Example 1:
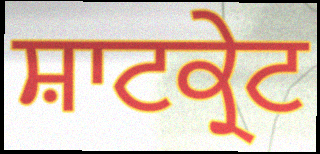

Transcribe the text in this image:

ਸ਼ਾਟਕ੍ਰੇਟ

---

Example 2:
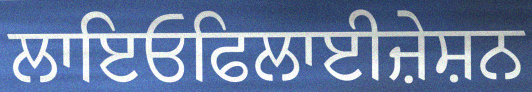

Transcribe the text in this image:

ਲਾਇਓਫਿਲਾਈਜ਼ੇਸ਼ਨ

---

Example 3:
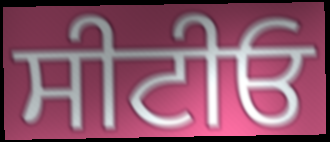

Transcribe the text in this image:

ਸੀਟੀਓ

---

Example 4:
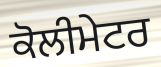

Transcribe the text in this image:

ਕੋਲੀਮੇਟਰ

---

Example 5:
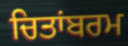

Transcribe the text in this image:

ਚਿਤਾਂਬਰਮ